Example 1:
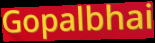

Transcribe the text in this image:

Gopalbhai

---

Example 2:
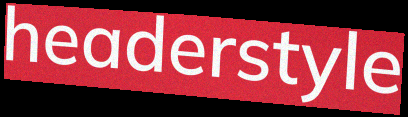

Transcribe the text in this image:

headerstyle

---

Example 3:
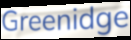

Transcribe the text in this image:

Greenidge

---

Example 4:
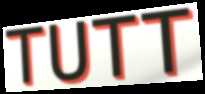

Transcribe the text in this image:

TUTT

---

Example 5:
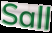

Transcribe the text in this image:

Sall